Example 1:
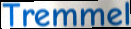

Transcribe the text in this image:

Tremmel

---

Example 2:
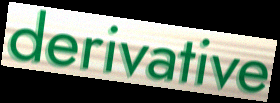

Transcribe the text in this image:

derivative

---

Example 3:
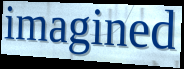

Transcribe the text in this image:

imagined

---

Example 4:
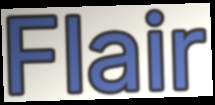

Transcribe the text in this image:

Flair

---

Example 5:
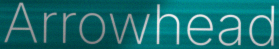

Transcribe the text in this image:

Arrowhead